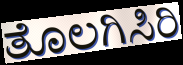
ತೊಲಗಿಸಿರಿ